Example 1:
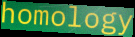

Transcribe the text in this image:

homology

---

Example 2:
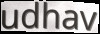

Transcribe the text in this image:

udhav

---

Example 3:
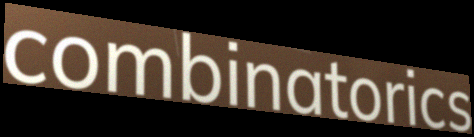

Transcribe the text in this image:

combinatorics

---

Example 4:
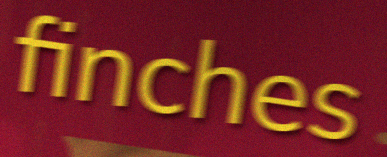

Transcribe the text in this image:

finches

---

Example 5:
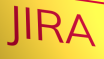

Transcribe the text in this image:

JIRA